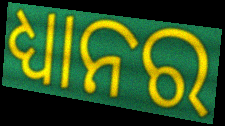
ଧ୍ୟାନର